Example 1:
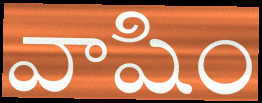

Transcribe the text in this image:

వాషిం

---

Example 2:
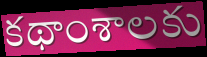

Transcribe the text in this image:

కథాంశాలకు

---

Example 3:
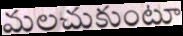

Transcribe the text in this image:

మలచుకుంటూ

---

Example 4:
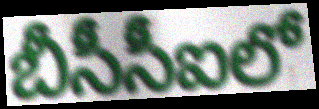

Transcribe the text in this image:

బీసీసీఐలో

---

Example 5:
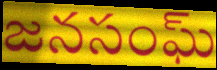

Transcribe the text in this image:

జనసంఘ్